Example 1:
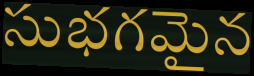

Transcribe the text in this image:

సుభగమైన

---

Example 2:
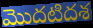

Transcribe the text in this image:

మొదటిదశ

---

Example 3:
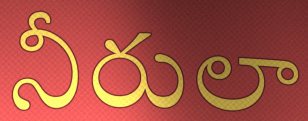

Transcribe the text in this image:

నీరులా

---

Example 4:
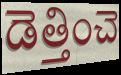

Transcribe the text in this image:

డెత్తించె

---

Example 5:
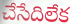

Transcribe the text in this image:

చేసేదిలేక